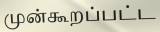
முன்கூறப்பட்ட